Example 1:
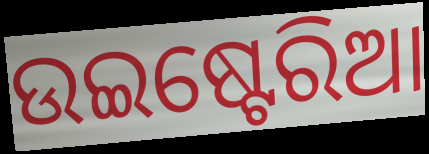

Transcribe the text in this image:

ଉଇଷ୍ଟେରିଆ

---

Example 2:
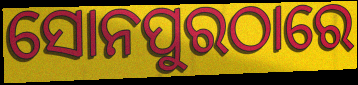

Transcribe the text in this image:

ସୋନପୁରଠାରେ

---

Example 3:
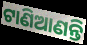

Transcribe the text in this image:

ଟାଣିଆଣନ୍ତି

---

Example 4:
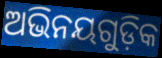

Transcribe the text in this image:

ଅଭିନୟଗୁଡ଼ିକ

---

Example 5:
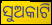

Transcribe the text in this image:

ସୁଅକାଟି